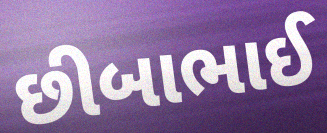
છીબાભાઈ